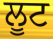
ਲੂਟ